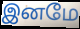
இனமே